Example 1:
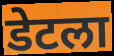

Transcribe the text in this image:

डेटला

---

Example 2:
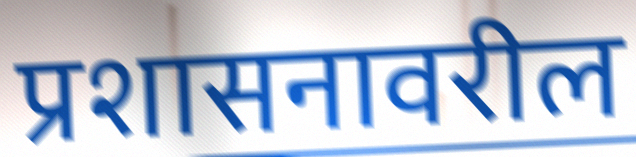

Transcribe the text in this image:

प्रशासनावरील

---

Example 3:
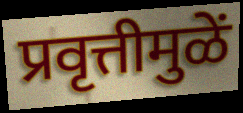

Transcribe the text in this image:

प्रवृत्तीमुळें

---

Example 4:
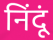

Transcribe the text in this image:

निंदूं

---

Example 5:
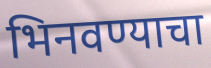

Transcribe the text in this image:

भिनवण्याचा